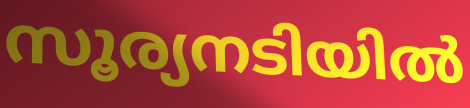
സൂര്യനടിയിൽ